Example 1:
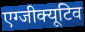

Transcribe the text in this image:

एग्जीक्यूटिव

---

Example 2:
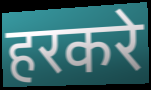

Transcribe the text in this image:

हरकरे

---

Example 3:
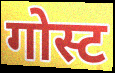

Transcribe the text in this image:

गोस्ट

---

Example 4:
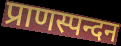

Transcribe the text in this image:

प्राणस्पन्दन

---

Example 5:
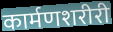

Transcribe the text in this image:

कार्मणशरीरी